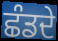
ਛੰਡਦੇ